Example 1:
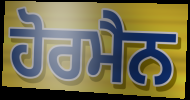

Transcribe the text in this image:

ਹੋਰਮੈਨ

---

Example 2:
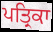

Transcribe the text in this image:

ਪਤ੍ਰਿਕਾ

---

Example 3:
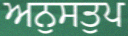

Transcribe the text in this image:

ਅਨੁਸਤੁਪ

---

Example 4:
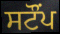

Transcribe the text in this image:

ਸਟੌਂਪ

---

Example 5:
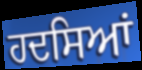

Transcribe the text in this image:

ਹਦਸਿਆਂ